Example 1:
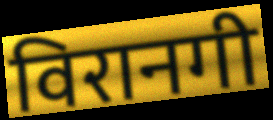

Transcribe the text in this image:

विरानगी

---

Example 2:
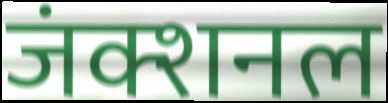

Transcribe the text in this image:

जंक्शनल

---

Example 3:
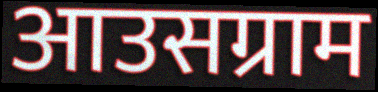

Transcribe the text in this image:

आउसग्राम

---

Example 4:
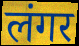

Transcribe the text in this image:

लंगर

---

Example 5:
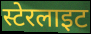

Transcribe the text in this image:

स्टेरलाइट